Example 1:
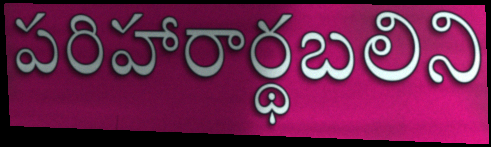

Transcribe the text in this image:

పరిహారార్థబలిని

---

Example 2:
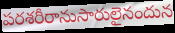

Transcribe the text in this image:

పరశరీరానుసారులైనందున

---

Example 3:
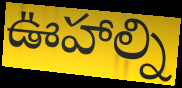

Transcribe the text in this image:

ఊహాల్ని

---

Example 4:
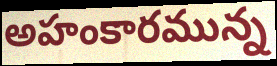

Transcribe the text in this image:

అహంకారమున్న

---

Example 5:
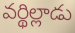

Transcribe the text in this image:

వర్థిల్లాడు